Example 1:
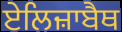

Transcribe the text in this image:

ਏਲਿਜ਼ਾਬੈਥ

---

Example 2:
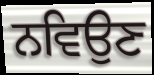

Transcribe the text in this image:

ਨਵਿਉਣ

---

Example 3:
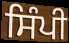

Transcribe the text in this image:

ਸਿੰਪੀ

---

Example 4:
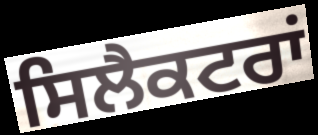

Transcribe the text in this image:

ਸਿਲੈਕਟਰਾਂ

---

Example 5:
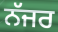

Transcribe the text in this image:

ਨੱਜਰ